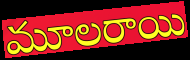
మూలరాయి